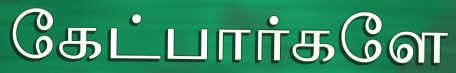
கேட்பார்களே